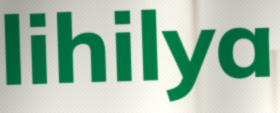
lihilya